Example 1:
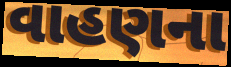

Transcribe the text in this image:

વાહણના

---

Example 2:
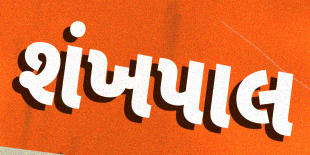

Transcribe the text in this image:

શંખપાલ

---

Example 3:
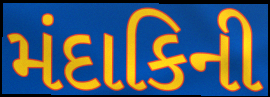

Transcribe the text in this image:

મંદાકિની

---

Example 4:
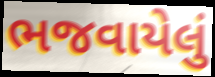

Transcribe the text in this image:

ભજવાયેલું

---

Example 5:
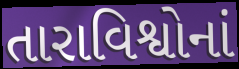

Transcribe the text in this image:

તારાવિશ્વોનાં